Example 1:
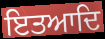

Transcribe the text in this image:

ਇਤਆਦਿ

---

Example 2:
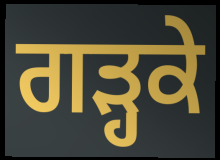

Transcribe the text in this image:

ਗੜ੍ਹਕੇ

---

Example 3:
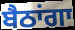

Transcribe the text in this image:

ਬੈਠਾਂਗਾ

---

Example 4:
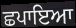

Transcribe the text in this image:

ਛਪਾਇਆ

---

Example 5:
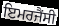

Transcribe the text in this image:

ਇਮਰਜੈਂਸੀ